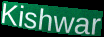
Kishwar